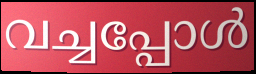
വച്ചപ്പോൾ